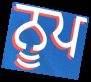
ਨੂਪ